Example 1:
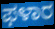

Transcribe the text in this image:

ಫಳಾರ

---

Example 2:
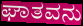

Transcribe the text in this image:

ಘಾತವನು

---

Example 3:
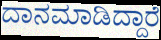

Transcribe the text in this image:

ದಾನಮಾಡಿದ್ದಾರೆ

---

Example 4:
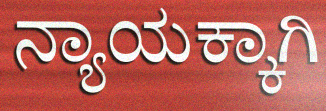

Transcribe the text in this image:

ನ್ಯಾಯಕ್ಕಾಗಿ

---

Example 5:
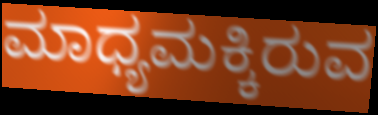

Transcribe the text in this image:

ಮಾಧ್ಯಮಕ್ಕಿರುವ